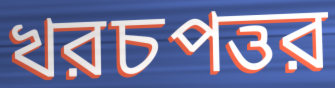
খরচপত্তর